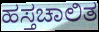
ಹಸ್ತಚಾಲಿತ